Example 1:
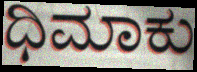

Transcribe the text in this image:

ಧಿಮಾಕು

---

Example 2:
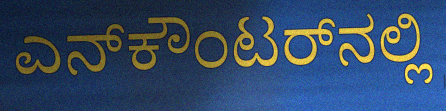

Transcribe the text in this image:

ಎನ್‌ಕೌಂಟರ್‌ನಲ್ಲಿ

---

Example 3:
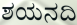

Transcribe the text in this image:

ಶಯನದಿ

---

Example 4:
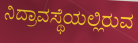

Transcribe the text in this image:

ನಿದ್ರಾವಸ್ಥೆಯಲ್ಲಿರುವ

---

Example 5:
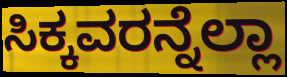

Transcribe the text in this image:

ಸಿಕ್ಕವರನ್ನೆಲ್ಲಾ